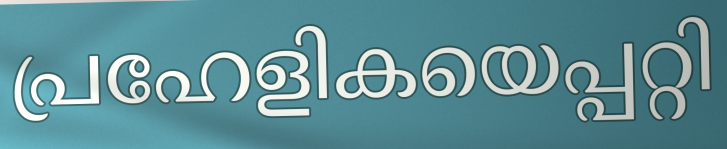
പ്രഹേളികയെപ്പറ്റി